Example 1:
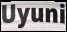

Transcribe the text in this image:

Uyuni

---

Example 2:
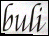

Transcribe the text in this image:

buli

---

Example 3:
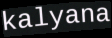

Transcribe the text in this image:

kalyana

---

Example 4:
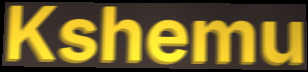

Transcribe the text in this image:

Kshemu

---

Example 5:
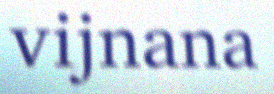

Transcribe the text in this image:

vijnana